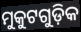
ମୁକୁଟଗୁଡ଼ିକ